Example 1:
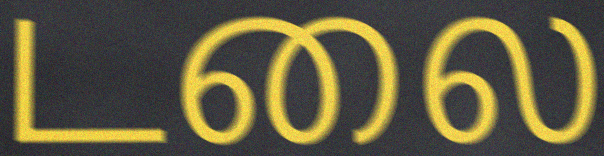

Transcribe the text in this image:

டலை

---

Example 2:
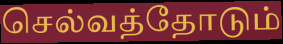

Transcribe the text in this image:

செல்வத்தோடும்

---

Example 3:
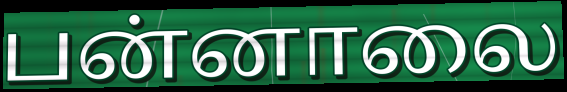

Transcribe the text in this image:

பன்னாலை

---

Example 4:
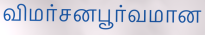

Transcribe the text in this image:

விமர்சனபூர்வமான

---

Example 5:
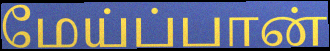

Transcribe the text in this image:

மேய்ப்பான்